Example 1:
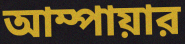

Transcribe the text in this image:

আম্পায়ার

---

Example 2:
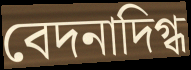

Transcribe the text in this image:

বেদনাদিগ্ধ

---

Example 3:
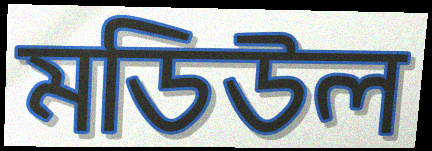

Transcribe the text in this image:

মডিউল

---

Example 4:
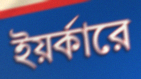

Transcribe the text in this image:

ইয়র্কারে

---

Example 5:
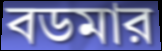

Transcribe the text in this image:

বডমার